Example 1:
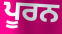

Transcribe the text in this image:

ਪੂਰਨ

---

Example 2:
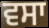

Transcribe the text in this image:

ਵਸਾ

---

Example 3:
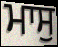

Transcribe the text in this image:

ਮਾਸੁ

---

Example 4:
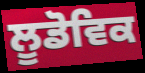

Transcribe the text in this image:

ਲੂਡੋਵਿਕ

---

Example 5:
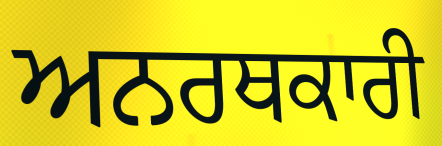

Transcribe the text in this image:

ਅਨਰਥਕਾਰੀ